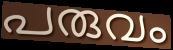
പരുവം